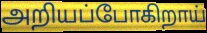
அறியப்போகிறாய்